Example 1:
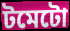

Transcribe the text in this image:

টমেটো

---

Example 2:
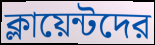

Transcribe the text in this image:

ক্লায়েন্টদের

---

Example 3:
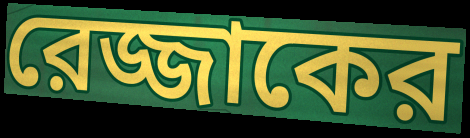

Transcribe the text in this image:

রেজ্জাকের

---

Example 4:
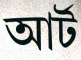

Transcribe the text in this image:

আর্ট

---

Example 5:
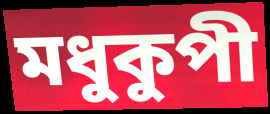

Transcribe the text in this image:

মধুকুপী